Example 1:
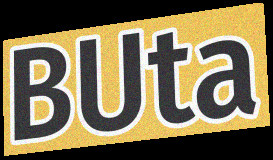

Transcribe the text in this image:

BUta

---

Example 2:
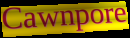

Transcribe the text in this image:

Cawnpore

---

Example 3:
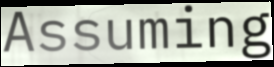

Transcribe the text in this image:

Assuming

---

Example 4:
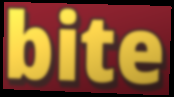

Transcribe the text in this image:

bite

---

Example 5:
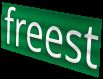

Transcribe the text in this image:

freest